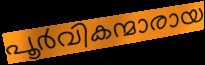
പൂർവികന്മാരായ